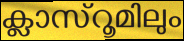
ക്ലാസ്റൂമിലും